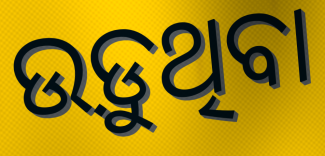
ଉଡ଼ୁଥିବା